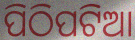
ପିଠିପଟିଆ